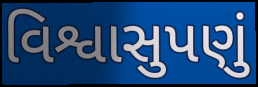
વિશ્વાસુપણું